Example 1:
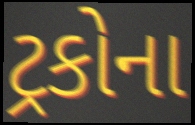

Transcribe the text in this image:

ટ્રકોના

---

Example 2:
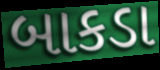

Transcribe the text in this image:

બાકડા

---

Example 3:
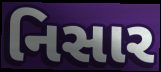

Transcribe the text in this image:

નિસાર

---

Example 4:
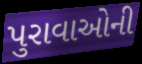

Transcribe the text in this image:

પુરાવાઓની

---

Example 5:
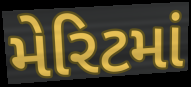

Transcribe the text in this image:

મેરિટમાં